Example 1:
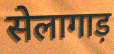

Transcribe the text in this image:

सेलागाड़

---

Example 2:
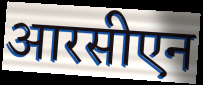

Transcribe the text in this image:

आरसीएन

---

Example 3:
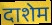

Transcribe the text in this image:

दाशेम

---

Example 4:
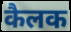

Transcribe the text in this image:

कैलक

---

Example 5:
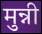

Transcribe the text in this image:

मुन्नी